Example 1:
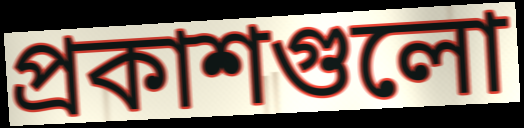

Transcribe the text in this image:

প্রকাশগুলো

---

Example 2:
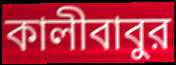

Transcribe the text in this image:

কালীবাবুর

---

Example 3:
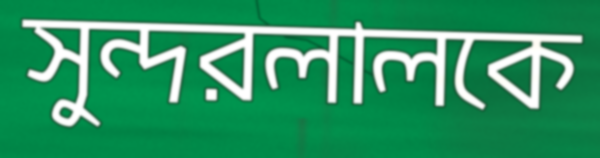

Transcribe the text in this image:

সুন্দরলালকে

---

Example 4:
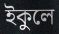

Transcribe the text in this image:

ইকুলে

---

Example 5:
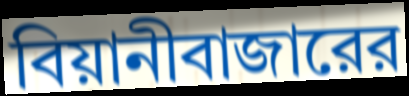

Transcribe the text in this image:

বিয়ানীবাজারের